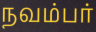
நவம்பர்